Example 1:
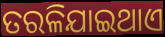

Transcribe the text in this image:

ତରଳିଯାଇଥାଏ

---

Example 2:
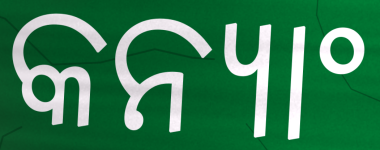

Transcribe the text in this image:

କନ୍ୟାଂ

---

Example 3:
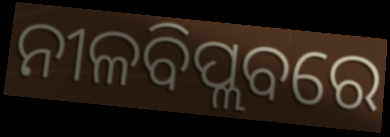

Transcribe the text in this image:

ନୀଳବିପ୍ଲବରେ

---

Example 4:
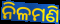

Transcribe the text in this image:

ନିଳମଣି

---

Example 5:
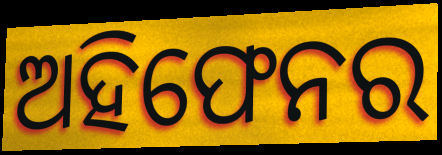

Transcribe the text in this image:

ଅହିଫେନର